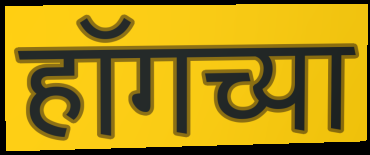
हॉगच्या